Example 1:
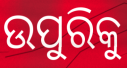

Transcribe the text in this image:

ଉପୁରିକୁ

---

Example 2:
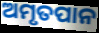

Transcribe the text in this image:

ଅମୃତପାନ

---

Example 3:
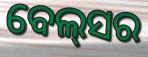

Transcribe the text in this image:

ବେଲ୍‌ସର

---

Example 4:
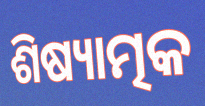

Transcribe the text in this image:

ଶିଷ୍ୟାତ୍ମକ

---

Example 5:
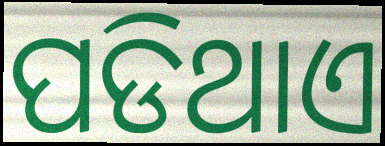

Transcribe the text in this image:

ପଡିଥାଏ